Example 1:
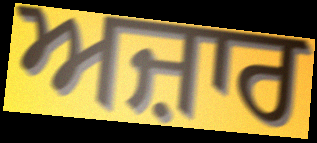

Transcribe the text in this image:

ਅਜ਼ਾਰ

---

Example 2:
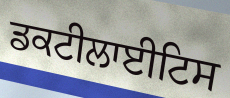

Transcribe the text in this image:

ਡਕਟੀਲਾਈਟਿਸ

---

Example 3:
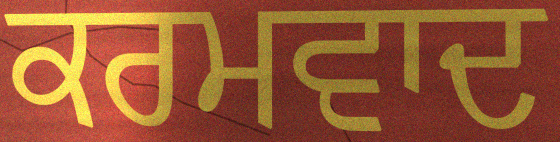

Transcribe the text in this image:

ਕਰਮਵਾਦ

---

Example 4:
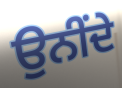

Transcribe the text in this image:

ਉਨੀਂਦੇ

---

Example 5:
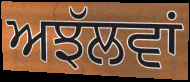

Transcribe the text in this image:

ਅਝੱਲਵਾਂ